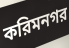
করিমনগর